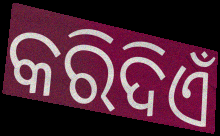
କରିଦିଏଁ